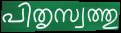
പിതൃസ്വത്തു